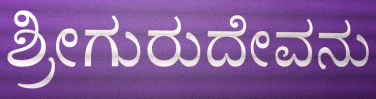
ಶ್ರೀಗುರುದೇವನು